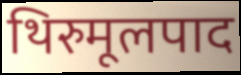
थिरुमूलपाद